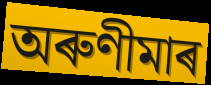
অৰুণীমাৰ